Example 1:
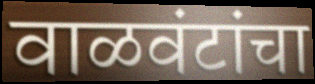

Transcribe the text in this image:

वाळवंटांचा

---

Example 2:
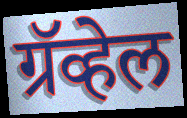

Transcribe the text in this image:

ग्रॅव्हेल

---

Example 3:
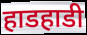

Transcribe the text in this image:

हाडहाडी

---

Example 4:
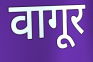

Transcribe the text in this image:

वागूर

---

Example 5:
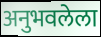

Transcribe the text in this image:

अनुभवलेला